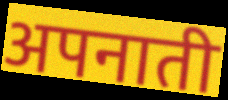
अपनाती